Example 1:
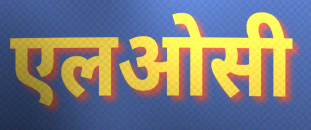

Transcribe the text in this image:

एलओसी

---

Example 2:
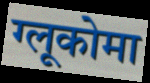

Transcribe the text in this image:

ग्लूकोमा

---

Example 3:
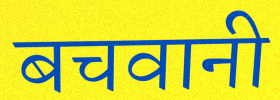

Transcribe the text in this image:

बचवानी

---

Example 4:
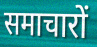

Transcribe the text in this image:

समाचारों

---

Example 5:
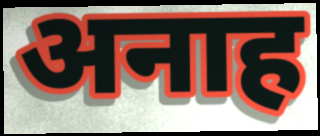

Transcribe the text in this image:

अनाह